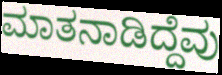
ಮಾತನಾಡಿದ್ದೆವು